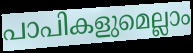
പാപികളുമെല്ലാം